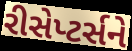
રીસેપ્ટર્સને